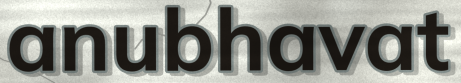
anubhavat